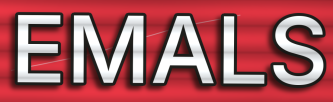
EMALS